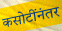
कसोटींनंतर